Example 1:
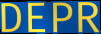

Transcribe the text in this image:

DEPR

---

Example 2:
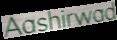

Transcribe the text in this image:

Aashirwad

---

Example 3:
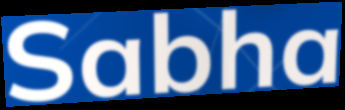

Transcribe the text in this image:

Sabha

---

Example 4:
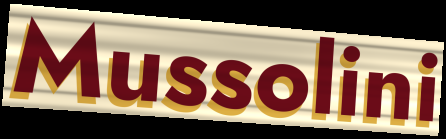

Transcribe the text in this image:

Mussolini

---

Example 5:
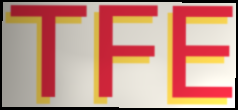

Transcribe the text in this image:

TFE